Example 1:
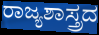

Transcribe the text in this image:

ರಾಜ್ಯಶಾಸ್ತ್ರದ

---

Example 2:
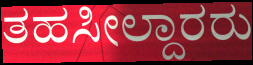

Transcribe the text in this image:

ತಹಸೀಲ್ದಾರರು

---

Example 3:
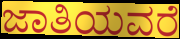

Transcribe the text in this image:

ಜಾತಿಯವರೆ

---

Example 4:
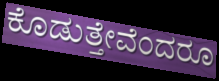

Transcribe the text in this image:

ಕೊಡುತ್ತೇವೆಂದರೂ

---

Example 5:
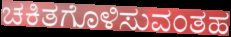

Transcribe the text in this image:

ಚಕಿತಗೊಳಿಸುವಂತಹ